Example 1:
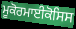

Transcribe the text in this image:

ਮੂਕੋਰਮਾਈਕੋਸਿਸ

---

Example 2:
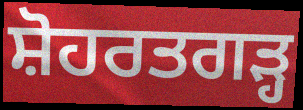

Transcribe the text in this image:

ਸ਼ੋਹਰਤਗੜ੍ਹ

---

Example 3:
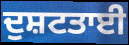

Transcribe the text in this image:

ਦੁਸ਼ਟਤਾਈ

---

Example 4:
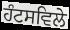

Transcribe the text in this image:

ਹੰਟਸਵਿਲੇ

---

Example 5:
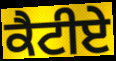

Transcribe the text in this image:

ਕੈਟੀਏ